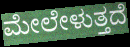
ಮೇಲೇಳುತ್ತದೆ